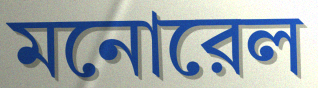
মনোরেল